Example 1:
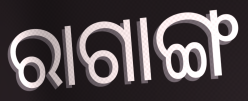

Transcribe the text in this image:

ରାଗାଙ୍ଗ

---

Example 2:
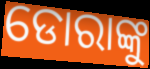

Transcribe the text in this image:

ଡୋରାଙ୍କୁ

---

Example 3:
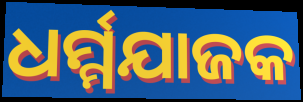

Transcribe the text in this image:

ଧର୍ମ୍ମଯାଜକ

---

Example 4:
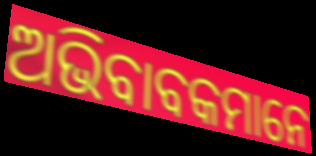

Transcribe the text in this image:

ଅଭିବାବକମାନେ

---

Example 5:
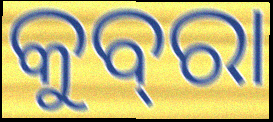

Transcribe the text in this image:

କୁବ୍‍ରା